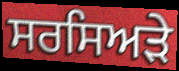
ਸਰਸਿਅੜੇ